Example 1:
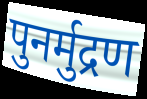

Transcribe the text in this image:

पुनर्मुद्रण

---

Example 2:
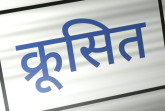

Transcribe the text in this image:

क्रूसित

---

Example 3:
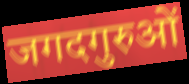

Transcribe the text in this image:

जगदगुरुओं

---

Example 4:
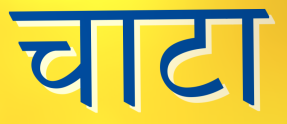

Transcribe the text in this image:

चाटा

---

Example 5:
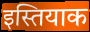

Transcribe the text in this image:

इस्तियाक